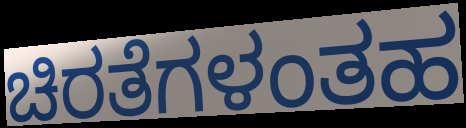
ಚಿರತೆಗಳಂತಹ